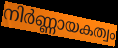
നിർണ്ണായകത്വം